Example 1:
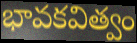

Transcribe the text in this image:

భావకవిత్వం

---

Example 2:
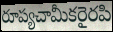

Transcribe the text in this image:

రూప్యచామీకరైరపి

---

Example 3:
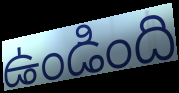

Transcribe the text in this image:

ఉండింది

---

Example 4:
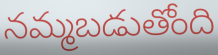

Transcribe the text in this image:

నమ్మబడుతోంది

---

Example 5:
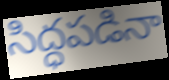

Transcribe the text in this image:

సిద్ధపడినా